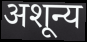
अशून्य